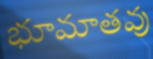
భూమాతవు